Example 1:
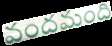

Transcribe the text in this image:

వందమంది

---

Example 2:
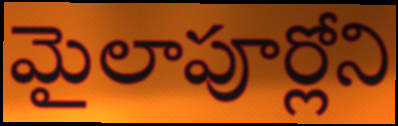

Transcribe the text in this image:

మైలాపూర్లోని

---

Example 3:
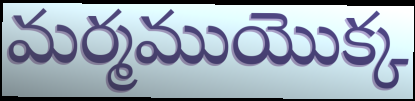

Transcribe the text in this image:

మర్మముయొక్క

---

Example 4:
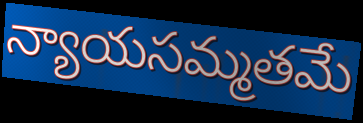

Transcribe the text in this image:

న్యాయసమ్మతమే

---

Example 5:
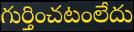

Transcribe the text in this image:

గుర్తించటంలేదు